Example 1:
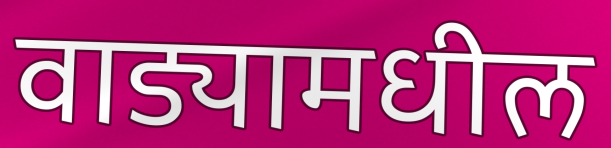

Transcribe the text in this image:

वाड्यामधील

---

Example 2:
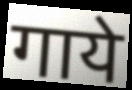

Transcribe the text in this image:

गाये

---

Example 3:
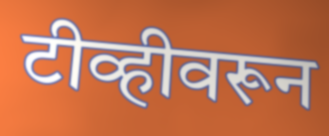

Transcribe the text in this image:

टीव्हीवरून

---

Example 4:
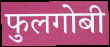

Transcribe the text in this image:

फुलगोबी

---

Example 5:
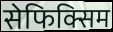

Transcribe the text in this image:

सेफिक्सिम